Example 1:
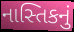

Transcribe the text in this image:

નાસ્તિકનું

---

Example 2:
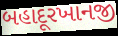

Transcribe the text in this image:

બહાદૂરખાનજી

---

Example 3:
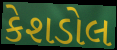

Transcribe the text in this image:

કેશડોલ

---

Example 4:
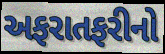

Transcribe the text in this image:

અફરાતફરીનો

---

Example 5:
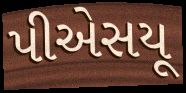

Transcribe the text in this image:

પીએસયૂ